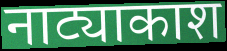
नाट्याकाश